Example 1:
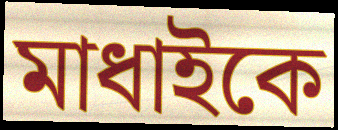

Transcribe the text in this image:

মাধাইকে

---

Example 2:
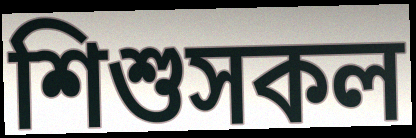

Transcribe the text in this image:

শিশুসকল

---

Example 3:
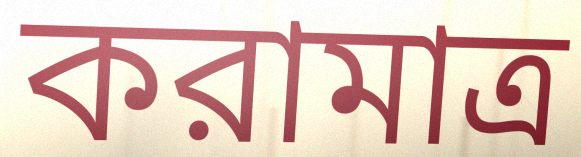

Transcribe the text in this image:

করামাত্র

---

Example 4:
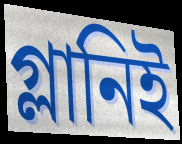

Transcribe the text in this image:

গ্লানিই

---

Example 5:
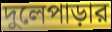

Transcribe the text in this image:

দুলেপাড়ার